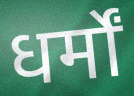
धर्मों